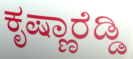
ಕೃಷ್ಣಾರೆಡ್ಡಿ